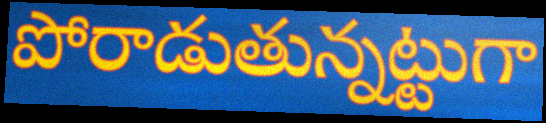
పోరాడుతున్నట్టుగా